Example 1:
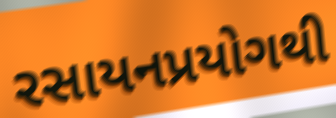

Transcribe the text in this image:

રસાયનપ્રયોગથી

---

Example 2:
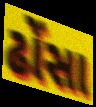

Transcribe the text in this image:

ઢોંસા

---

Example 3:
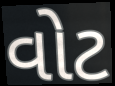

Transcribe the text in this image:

વોટ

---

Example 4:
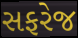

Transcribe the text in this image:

સફરેજ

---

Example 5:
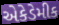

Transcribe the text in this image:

એકેડેમીક